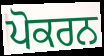
ਪੋਕਰਨ